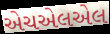
એચએલએલ